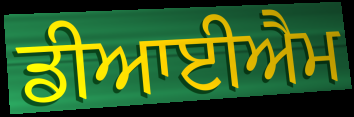
ਡੀਆਈਐਮ